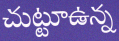
చుట్టూఉన్న